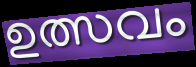
ഉത്സവം